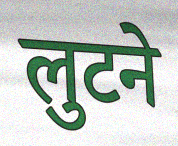
लुटने